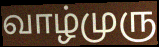
வாழ்முரு